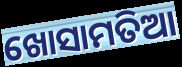
ଖୋସାମତିଆ